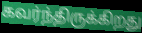
கவர்ந்திருக்கிறது